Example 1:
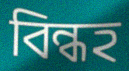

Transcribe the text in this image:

বিন্ধহ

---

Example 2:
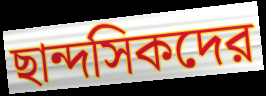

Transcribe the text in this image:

ছান্দসিকদের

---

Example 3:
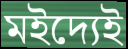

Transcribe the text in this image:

মইদ্যেই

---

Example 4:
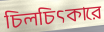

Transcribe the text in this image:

চিলচিৎকারে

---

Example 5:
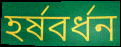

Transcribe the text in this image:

হর্ষবর্ধন